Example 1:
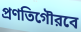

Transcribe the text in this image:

প্রণতিগৌরবে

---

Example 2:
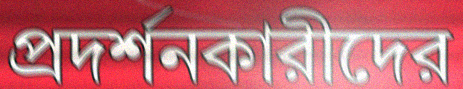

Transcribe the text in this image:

প্রদর্শনকারীদের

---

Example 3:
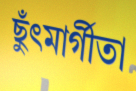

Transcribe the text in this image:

ছুঁৎমার্গীতা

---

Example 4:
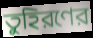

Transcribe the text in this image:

তুহিরণের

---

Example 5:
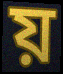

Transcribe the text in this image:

য়